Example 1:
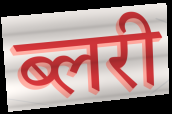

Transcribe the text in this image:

ब्लरी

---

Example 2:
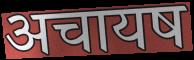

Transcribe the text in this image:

अचायष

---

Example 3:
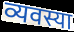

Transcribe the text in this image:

व्यवस्या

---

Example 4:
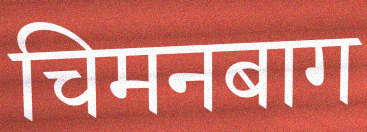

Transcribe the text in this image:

चिमनबाग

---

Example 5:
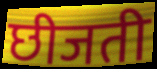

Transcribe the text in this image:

छीजती